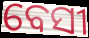
ବେସୀ